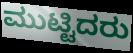
ಮುಟ್ಟಿದರು